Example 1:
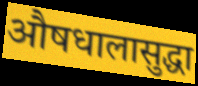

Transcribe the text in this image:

औषधालासुद्धा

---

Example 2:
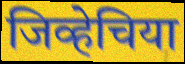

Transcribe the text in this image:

जिव्हेचिया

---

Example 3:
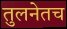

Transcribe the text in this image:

तुलनेतच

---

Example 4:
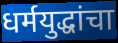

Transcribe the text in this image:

धर्मयुद्धांचा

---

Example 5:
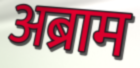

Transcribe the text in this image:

अब्राम